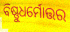
ବିଷ୍ଣୁଧର୍ମୋତ୍ତର